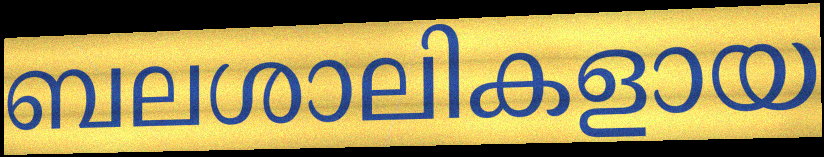
ബലശാലികളായ